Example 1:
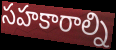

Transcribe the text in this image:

సహకారాల్ని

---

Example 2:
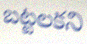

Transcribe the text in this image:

బట్టలకని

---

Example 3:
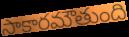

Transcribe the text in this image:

సాకారమౌతుంది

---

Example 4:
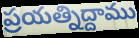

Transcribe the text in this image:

ప్రయత్నిద్దాము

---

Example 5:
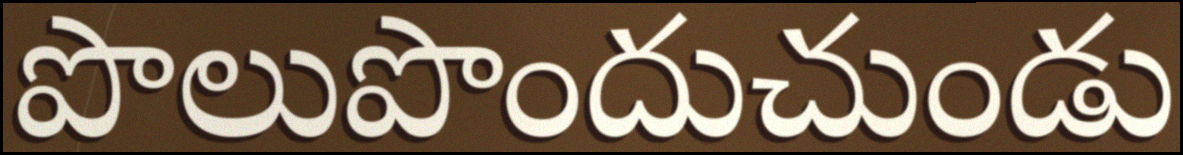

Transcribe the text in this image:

పొలుపొందుచుండు